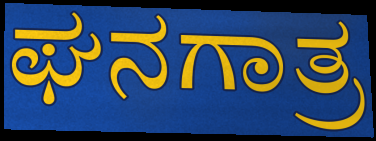
ಘನಗಾತ್ರ